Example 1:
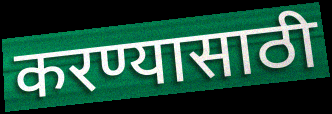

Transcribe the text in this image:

करण्यासाठी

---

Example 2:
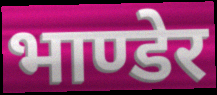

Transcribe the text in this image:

भाण्डेर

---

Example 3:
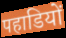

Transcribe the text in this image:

पहाडियों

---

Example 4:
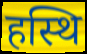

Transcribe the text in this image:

हस्थि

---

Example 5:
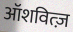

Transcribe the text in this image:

ऑशवित्ज़